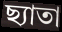
ছ্যাতা